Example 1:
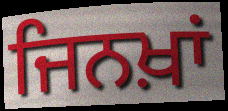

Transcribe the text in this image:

ਜਿਨਖ਼ਾਂ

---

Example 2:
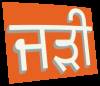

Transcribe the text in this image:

ਜੜੀ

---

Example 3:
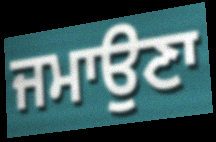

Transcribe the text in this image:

ਜਮਾਉਣਾ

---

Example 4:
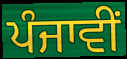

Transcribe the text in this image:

ਪੰਜਾਵੀਂ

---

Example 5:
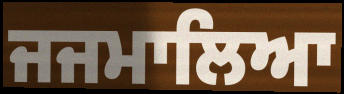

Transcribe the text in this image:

ਜਜਮਾਲਿਆ